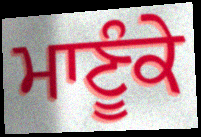
ਮਾਣੂੰਕੇ